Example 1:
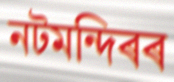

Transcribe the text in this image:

নটমন্দিৰৰ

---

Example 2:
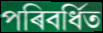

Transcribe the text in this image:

পৰিবৰ্ধিত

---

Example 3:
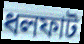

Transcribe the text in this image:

ধলফাট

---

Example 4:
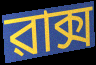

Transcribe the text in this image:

ৱাক্স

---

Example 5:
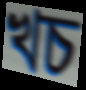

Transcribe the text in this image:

খচ